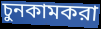
চুনকামকরা